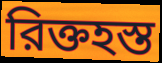
রিক্তহস্ত